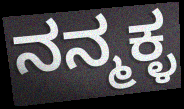
ನನ್ಮಕ್ಳ